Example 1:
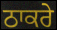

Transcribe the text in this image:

ਠਾਕਰੇ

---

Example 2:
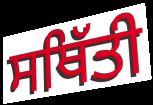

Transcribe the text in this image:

ਸਥਿੱਤੀ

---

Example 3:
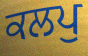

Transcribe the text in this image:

ਕਲਪੁ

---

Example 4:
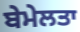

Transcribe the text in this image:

ਬੇਮੇਲਤਾ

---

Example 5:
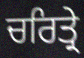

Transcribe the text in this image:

ਚਰਿਤ੍ਰੇ